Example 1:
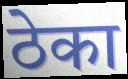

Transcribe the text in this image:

ठेका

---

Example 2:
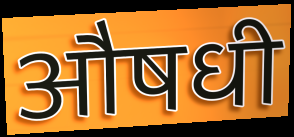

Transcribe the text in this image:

औषधी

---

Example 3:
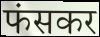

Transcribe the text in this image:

फंसकर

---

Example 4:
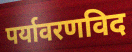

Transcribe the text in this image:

पर्यावरणविद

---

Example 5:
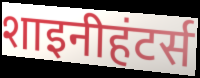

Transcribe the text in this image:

शाइनीहंटर्स